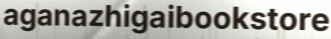
aganazhigaibookstore